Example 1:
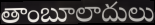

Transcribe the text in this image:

తాంబూలాదులు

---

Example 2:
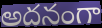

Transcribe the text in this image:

అదనంగా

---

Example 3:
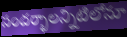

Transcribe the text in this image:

సందర్భాలన్నిటిలోనూ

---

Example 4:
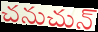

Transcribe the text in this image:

చనుచున్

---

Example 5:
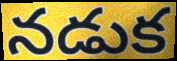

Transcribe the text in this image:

నడుక